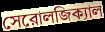
সেরোলজিক্যাল